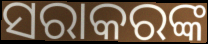
ସରାକରଙ୍କ